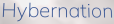
Hybernation